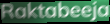
Raktabeeja